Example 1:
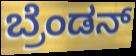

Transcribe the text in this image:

ಬ್ರೆಂಡನ್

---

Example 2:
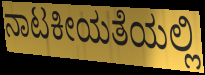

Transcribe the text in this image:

ನಾಟಕೀಯತೆಯಲ್ಲಿ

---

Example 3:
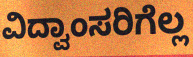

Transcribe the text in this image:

ವಿದ್ವಾಂಸರಿಗೆಲ್ಲ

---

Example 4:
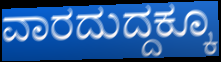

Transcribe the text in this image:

ವಾರದುದ್ದಕ್ಕೂ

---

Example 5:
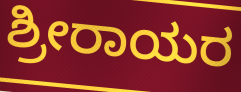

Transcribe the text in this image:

ಶ್ರೀರಾಯರ